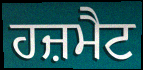
ਹਜ਼ਮੈਟ